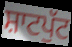
ਸ਼ਾਟਪੁੱਟ